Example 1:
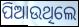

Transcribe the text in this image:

ପିଆଉଥିଲେ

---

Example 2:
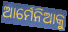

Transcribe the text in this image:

ଆର୍ମେନିଆକୁ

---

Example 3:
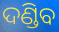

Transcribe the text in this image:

ଦଣ୍ଡିବ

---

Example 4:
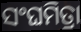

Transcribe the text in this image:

ସଂଘମିତ୍ରା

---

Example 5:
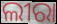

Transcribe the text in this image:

ଲୀରା